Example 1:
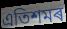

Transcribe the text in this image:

এতিশমৰ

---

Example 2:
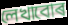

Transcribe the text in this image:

লেখাবোৰ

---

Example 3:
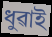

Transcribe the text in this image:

ধুৱাই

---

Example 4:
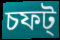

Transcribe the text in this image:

চফট্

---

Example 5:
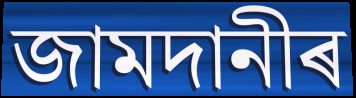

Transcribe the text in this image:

জামদানীৰ